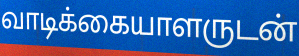
வாடிக்கையாளருடன்